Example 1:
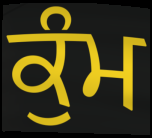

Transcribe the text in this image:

ਕੁੰਮ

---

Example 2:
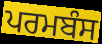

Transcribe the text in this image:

ਪਰਮਬੰਸ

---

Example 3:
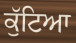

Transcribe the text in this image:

ਕੁੱਟਿਆ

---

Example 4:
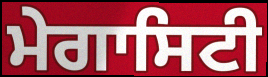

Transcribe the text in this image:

ਮੇਗਾਸਿਟੀ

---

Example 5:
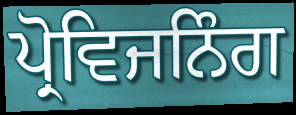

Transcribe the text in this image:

ਪ੍ਰੋਵਿਜਨਿੰਗ